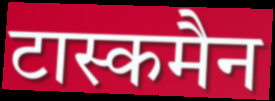
टास्कमैन